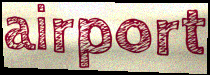
airport